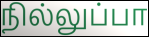
நில்லுப்பா